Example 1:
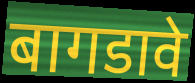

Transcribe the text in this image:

बागडावे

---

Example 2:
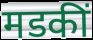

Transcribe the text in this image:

मडकीं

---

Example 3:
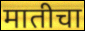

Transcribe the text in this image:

मातीचा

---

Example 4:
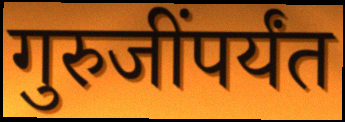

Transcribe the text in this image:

गुरुजींपर्यंत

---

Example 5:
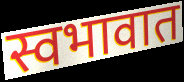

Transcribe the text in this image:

स्वभावात